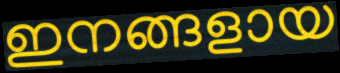
ഇനങ്ങളായ